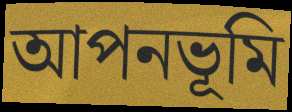
আপনভূমি